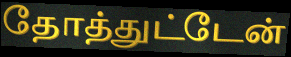
தோத்துட்டேன்